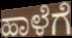
ಹಾಳೆಗೆ